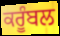
ਕਰੂੰਬਲ